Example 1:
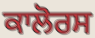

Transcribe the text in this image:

ਕਾਲੋਰਸ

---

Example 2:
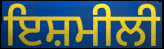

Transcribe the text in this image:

ਇਸ਼ਮੀਲੀ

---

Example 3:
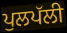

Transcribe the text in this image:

ਪੁਲਪੱਲੀ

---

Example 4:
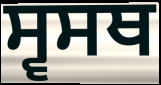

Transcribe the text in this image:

ਸ੍ਵਸਥ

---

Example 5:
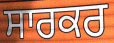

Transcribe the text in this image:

ਸਾਰਕਰ